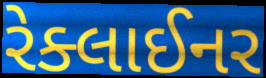
રેક્લાઈનર